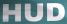
HUD